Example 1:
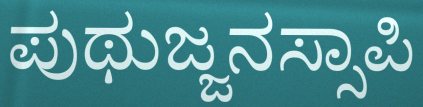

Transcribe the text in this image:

ಪುಥುಜ್ಜನಸ್ಸಾಪಿ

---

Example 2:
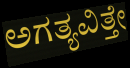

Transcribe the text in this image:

ಅಗತ್ಯವಿತ್ತೇ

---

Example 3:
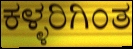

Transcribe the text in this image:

ಕಳ್ಳರಿಗಿಂತ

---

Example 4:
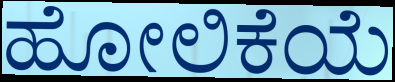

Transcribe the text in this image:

ಹೋಲಿಕೆಯೆ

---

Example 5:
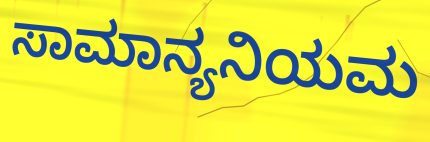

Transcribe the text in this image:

ಸಾಮಾನ್ಯನಿಯಮ